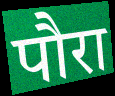
पौरा